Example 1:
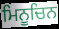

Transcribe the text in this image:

ਮਿਨੂਚਿਨ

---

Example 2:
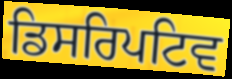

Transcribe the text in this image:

ਡਿਸਰਿਪਟਿਵ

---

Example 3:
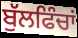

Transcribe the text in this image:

ਬੁੱਲਫਿੰਚਾਂ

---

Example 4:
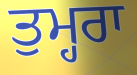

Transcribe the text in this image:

ਤੁਮ੍ਹਰਾ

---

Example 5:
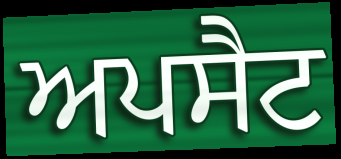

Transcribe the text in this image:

ਅਪਸੈਟ